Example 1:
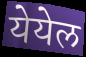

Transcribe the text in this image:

येयेल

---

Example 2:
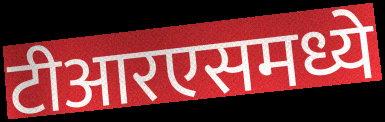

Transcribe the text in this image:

टीआरएसमध्ये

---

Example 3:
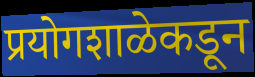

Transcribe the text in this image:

प्रयोगशाळेकडून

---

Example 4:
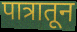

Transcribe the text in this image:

पात्रातून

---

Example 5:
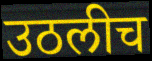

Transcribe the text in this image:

उठलीच